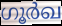
ഗൂർഖ